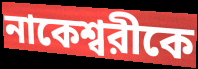
নাকেশ্বরীকে